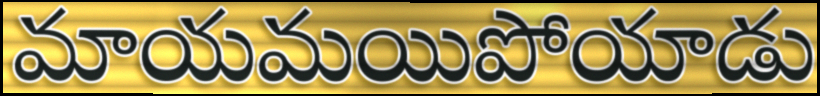
మాయమయిపోయాడు